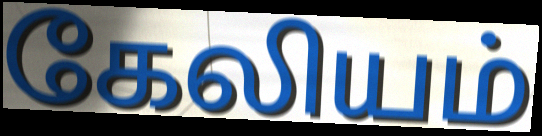
கேலியம்